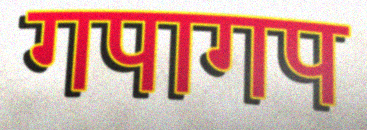
गपागप